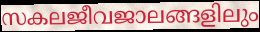
സകലജീവജാലങ്ങളിലും